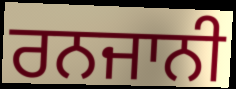
ਰਨਜਾਨੀ